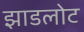
झाडलोट